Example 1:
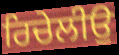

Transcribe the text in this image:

ਰਿਚੇਲੀਉ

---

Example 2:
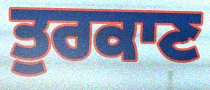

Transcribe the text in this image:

ਤੁਰਕਾਣ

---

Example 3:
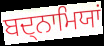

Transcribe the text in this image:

ਬਦ੍ਨਾਮਿਯਾਂ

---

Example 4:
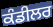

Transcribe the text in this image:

ਕੰਡੀਲਰ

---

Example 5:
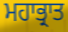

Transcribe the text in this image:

ਮਹਾਭ੍ਰਾਤ